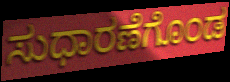
ಸುಧಾರಣೆಗೊಂಡ